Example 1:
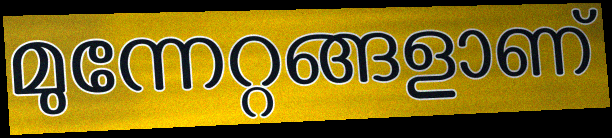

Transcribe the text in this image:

മുന്നേറ്റങ്ങളാണ്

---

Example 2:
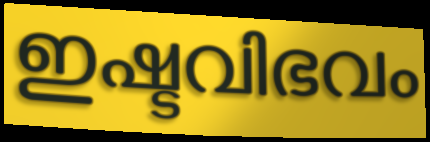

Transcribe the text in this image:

ഇഷ്ടവിഭവം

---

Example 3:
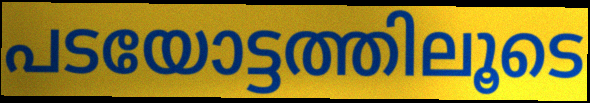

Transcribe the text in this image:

പടയോട്ടത്തിലൂടെ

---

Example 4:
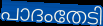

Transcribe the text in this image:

പാദംതേടി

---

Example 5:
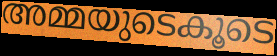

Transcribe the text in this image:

അമ്മയുടെകൂടെ